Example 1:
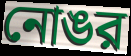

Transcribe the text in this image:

নোঙর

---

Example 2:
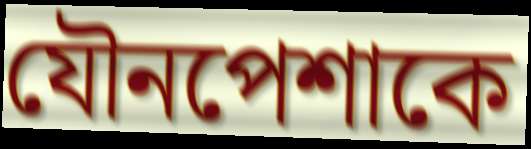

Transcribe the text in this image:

যৌনপেশাকে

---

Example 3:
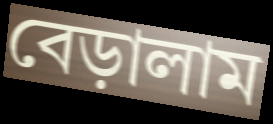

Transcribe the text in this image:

বেড়ালাম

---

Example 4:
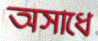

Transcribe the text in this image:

অসাধে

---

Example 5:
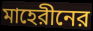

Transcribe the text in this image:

মাহেরীনের